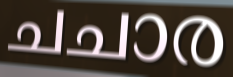
ചചാര